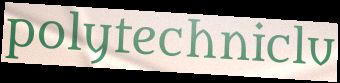
polytechniclu